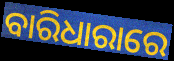
ବାରିଧାରାରେ